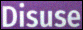
Disuse